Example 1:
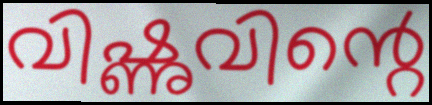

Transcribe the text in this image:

വിഷ്ണുവിന്റെ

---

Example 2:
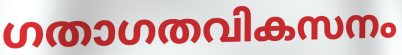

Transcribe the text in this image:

ഗതാഗതവികസനം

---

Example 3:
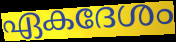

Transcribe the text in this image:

ഏകദേശം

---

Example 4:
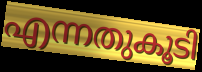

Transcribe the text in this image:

എന്നതുകൂടി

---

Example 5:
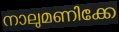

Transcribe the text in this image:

നാലുമണിക്കേ